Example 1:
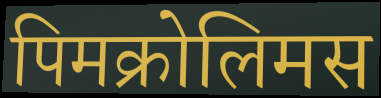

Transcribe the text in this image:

पिमक्रोलिमस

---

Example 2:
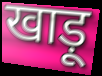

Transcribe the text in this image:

खाड़ू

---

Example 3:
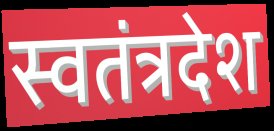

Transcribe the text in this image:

स्वतंत्रदेश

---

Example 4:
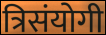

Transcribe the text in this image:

त्रिसंयोगी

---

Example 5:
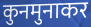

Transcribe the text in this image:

कुनमुनाकर